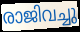
രാജിവച്ചു